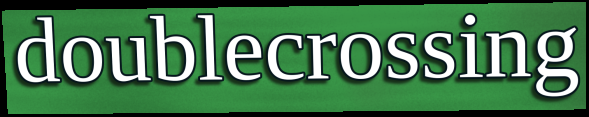
doublecrossing